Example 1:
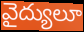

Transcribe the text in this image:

వైద్యులూ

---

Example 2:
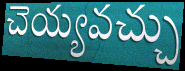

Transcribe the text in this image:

చెయ్యవచ్చు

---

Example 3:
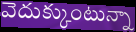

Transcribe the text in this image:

వెదుక్కుంటున్నా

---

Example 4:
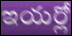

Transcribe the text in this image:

ఇయర్లో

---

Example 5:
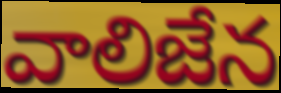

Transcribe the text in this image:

వాలిజేన